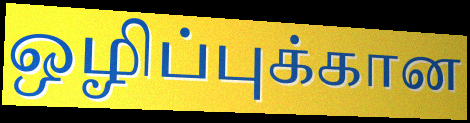
ஒழிப்புக்கான